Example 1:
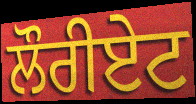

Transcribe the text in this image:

ਲੌਰੀਏਟ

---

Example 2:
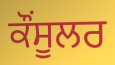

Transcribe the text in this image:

ਕੌਂਸੂਲਰ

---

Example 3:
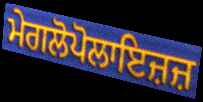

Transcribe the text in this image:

ਮੇਗਲੋਪੋਲਾਇਜ਼ਜ਼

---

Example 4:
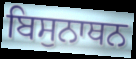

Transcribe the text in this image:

ਬਿਸੁਨਾਥਨ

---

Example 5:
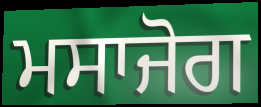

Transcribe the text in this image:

ਮਸਾਜੋਗ